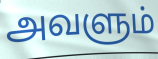
அவளும்